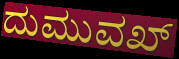
ದುಮುವಖ್